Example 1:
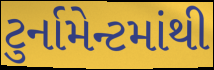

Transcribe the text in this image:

ટુર્નામેન્ટમાંથી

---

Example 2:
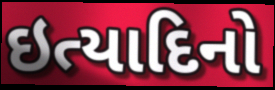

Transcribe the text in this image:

ઇત્યાદિનો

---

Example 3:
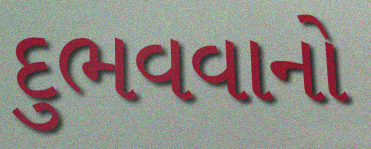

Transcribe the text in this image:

દુભવવાનો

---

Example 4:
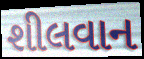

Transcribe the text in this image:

શીલવાન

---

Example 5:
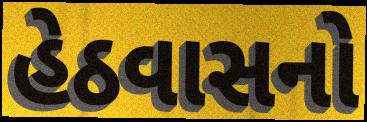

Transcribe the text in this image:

હેઠવાસનો